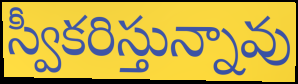
స్వీకరిస్తున్నావు